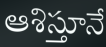
ఆశిస్తూనే